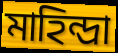
মাহিন্দ্রা